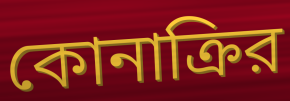
কোনাক্রির